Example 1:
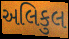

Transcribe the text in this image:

અલિકુલ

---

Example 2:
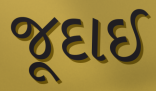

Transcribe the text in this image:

જૂદાઈ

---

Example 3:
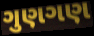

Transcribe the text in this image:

ગુણગણ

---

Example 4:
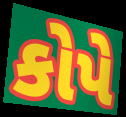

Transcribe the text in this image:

કોપે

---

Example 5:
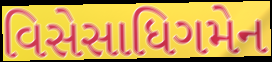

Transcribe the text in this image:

વિસેસાધિગમેન